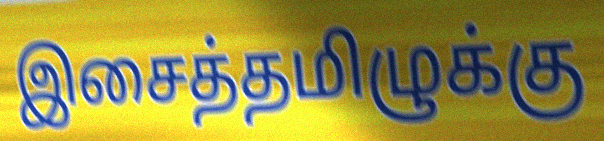
இசைத்தமிழுக்கு